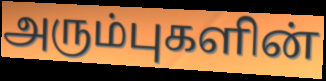
அரும்புகளின்